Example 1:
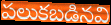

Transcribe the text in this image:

పలుకబడినవి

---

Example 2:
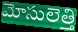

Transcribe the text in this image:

మోసులెత్తి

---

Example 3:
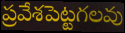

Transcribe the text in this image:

ప్రవేశపెట్టగలవు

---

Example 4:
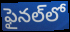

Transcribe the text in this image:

ఫైనల్‌లో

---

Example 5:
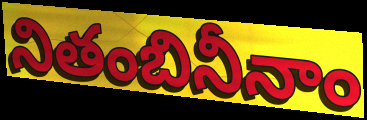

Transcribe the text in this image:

నితంబినీనాం